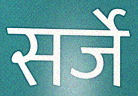
सर्जे